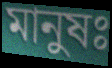
মানুষঃ